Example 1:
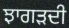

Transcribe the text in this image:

ਝਾਗੜਦੀ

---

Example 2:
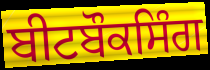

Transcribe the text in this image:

ਬੀਟਬੌਕਸਿੰਗ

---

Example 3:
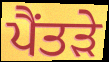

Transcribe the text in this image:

ਪੈਂਤੜੇ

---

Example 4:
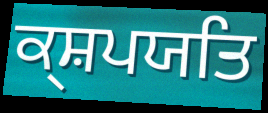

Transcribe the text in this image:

ਕ੍ਸ਼ਪਯਤਿ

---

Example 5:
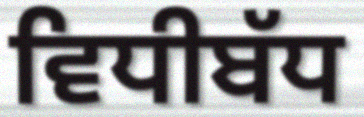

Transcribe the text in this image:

ਵਿਧੀਬੱਧ